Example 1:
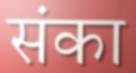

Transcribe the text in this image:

संका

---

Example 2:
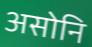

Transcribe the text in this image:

असोनि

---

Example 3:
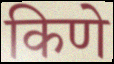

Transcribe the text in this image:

किणे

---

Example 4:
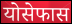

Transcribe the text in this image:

योसेफास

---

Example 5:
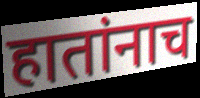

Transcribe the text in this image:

हातांनाच